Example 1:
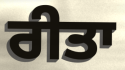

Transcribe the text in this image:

ਰੀਤਾ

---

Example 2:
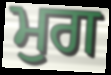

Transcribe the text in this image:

ਮੁਗ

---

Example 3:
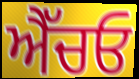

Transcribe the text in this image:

ਐੱਚਓ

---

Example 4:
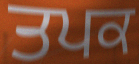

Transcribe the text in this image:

ਤਪਕ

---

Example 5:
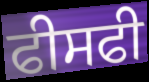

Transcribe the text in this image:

ਫੀਸਫੀ